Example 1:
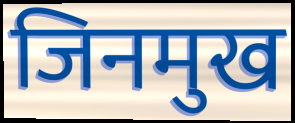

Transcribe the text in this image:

जिनमुख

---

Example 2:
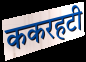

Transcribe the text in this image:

ककरहटी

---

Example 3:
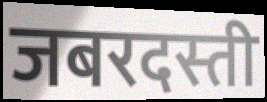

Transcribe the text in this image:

जबरदस्ती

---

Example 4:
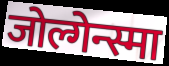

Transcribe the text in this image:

जोल्गेन्स्मा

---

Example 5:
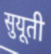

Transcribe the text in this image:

सुयूती